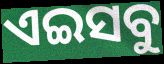
ଏଇସବୁ